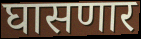
घासणार